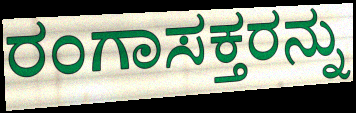
ರಂಗಾಸಕ್ತರನ್ನು